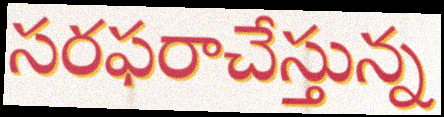
సరఫరాచేస్తున్న